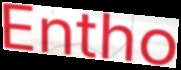
Entho